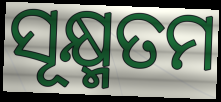
ସୂକ୍ଷ୍ମତମ